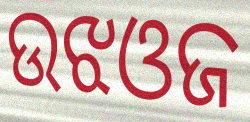
ଉଝଓଜ